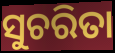
ସୁଚରିତା